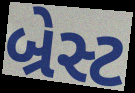
બ્રેસ્ટ